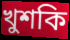
খুশকি